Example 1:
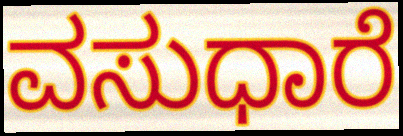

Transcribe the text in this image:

ವಸುಧಾರೆ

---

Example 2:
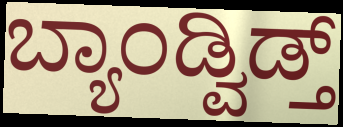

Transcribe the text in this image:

ಬ್ಯಾಂಡ್ವಿಡ್ತ್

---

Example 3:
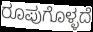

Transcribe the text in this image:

ರೂಪುಗೊಳ್ಳದೆ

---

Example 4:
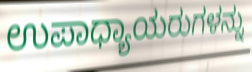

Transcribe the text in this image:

ಉಪಾಧ್ಯಾಯರುಗಳನ್ನು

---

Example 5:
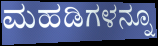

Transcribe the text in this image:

ಮಹಡಿಗಳನ್ನೂ